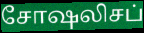
சோஷலிசப்